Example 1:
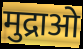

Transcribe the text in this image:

मुद्राओ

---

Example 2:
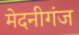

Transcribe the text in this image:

मेदनीगंज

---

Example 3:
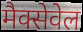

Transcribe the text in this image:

मैक्सेवेल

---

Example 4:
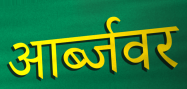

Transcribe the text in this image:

आर्ब्जवर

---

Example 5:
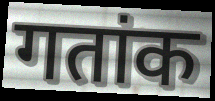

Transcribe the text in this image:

गतांक